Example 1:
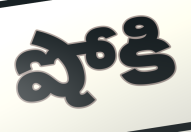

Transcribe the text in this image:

షోకి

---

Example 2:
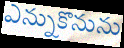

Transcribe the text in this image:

ఎన్నుకొనును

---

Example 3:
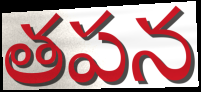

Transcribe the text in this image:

తపన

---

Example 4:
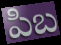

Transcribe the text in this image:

పిబ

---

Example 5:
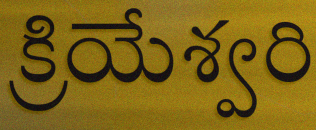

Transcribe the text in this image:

క్రియేశ్వరి